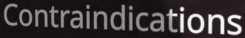
Contraindications